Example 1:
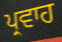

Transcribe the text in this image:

ਪ੍ਰਵਾਹ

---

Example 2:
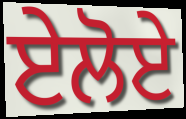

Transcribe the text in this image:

ਏਲੋਏ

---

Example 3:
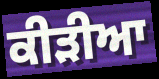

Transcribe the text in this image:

ਕੀੜੀਆ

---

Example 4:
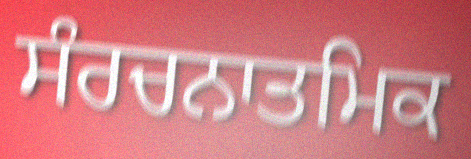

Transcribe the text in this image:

ਸੰਰਚਨਾਤਮਿਕ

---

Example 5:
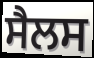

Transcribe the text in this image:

ਸੈਲਸ